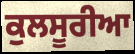
ਕੁਲਸੂਰੀਆ